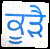
ਕੂੜੈ